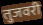
तुजवरी